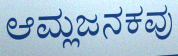
ಆಮ್ಲಜನಕವು